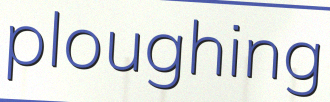
ploughing